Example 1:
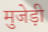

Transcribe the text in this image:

मुजेड़ी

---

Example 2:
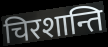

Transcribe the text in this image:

चिरशान्ति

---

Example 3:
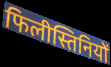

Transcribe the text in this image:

फिलीस्तिनियों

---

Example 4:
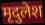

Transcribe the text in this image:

मृदुलेश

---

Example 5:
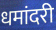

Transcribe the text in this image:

धमांदरी